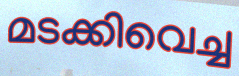
മടക്കിവെച്ച